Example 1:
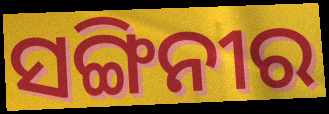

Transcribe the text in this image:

ସଙ୍ଗିନୀର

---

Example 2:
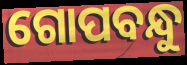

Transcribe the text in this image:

ଗୋପବନ୍ଧୁ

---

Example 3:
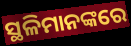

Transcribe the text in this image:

ସ୍ଥଳିମାନଙ୍କରେ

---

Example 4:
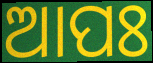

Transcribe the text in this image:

ଆପଃ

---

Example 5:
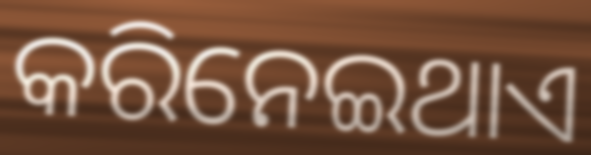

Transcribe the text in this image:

କରିନେଇଥାଏ